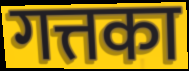
गत्तका